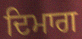
ਦਿਮਾਗ